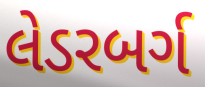
લેડરબર્ગ